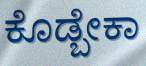
ಕೊಡ್ಬೇಕಾ